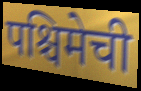
पश्चिमेची